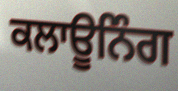
ਕਲਾਊਨਿੰਗ